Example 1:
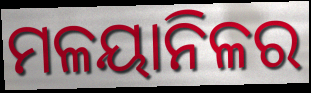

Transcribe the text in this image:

ମଳୟାନିଳର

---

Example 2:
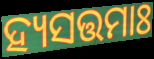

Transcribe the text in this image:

ହ୍ୟସତ୍ତମାଃ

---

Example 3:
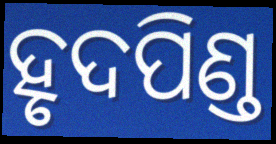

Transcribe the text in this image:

ହୃଦପିଣ୍ଡ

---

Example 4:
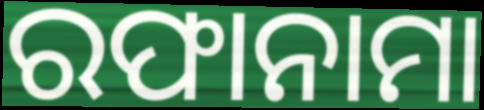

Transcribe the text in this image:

ରଫାନାମା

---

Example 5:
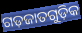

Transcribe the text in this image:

ଗଡ଼ଜାତଗୁଡ଼ିକ